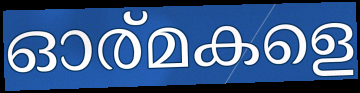
ഓര്മകളെ